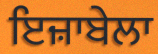
ਇਜ਼ਾਬੇਲਾ